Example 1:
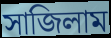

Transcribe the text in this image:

সাজিলাম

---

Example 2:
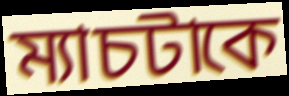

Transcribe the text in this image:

ম্যাচটাকে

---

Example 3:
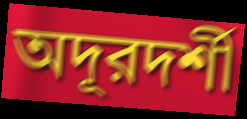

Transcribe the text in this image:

অদূরদর্শী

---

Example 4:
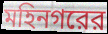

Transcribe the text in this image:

মহিনগরের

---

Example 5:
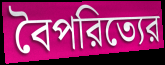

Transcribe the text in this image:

বৈপরিত্যের